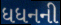
ધધનની